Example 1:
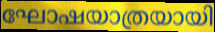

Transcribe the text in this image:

ഘോഷയാത്രയായി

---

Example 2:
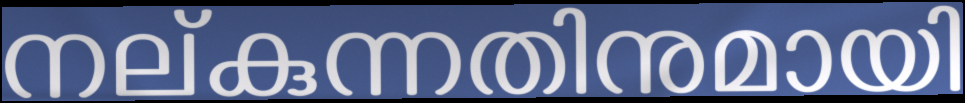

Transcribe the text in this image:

നല്‌കുന്നതിനുമായി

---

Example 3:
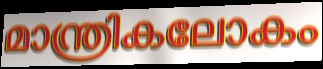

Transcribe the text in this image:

മാന്ത്രികലോകം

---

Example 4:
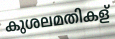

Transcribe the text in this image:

കുശലമതികള്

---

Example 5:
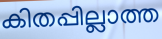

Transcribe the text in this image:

കിതപ്പില്ലാത്ത